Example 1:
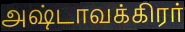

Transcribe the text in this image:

அஷ்டாவக்கிரர்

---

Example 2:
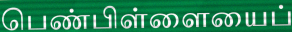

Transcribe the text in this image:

பெண்பிள்ளையைப்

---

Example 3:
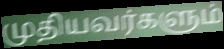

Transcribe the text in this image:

முதியவர்களும்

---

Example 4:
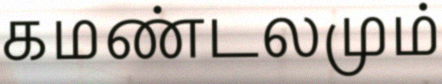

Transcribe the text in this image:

கமண்டலமும்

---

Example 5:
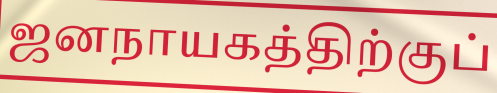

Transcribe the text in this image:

ஜனநாயகத்திற்குப்